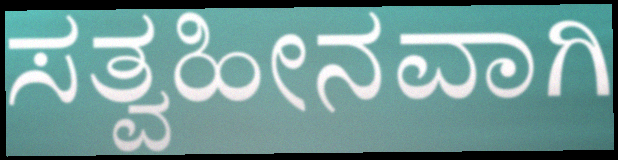
ಸತ್ವಹೀನವಾಗಿ